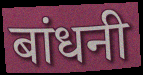
बांधनी